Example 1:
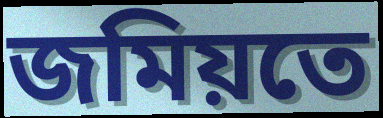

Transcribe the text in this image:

জমিয়তে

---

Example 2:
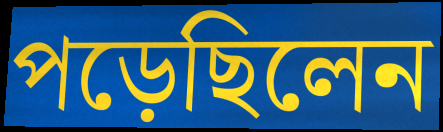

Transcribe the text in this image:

পড়েছিলেন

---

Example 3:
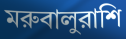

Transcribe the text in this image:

মরুবালুরাশি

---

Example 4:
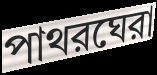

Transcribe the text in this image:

পাথরঘেরা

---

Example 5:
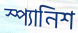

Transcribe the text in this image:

স্প্যানিশ